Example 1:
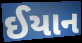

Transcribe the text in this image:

ઈયાન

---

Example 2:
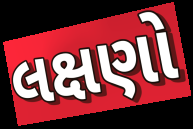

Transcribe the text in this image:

લક્ષણો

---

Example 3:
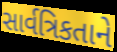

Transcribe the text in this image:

સાર્વત્રિકતાને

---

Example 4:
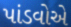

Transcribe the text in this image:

પાંડવોએ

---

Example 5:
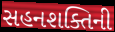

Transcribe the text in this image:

સહનશક્તિની